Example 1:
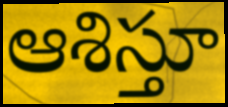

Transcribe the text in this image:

ఆశిస్తూ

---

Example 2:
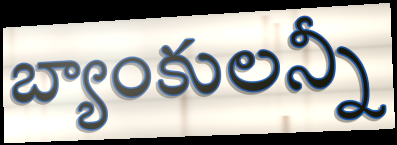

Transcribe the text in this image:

బ్యాంకులన్నీ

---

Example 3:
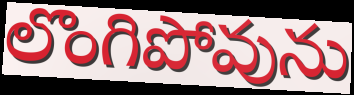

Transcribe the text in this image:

లొంగిపోవును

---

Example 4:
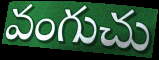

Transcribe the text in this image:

వంగుచు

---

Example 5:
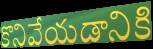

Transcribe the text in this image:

కొనివేయడానికి